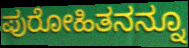
ಪುರೋಹಿತನನ್ನೂ